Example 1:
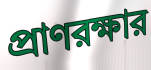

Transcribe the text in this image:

প্রাণরক্ষার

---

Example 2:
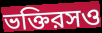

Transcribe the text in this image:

ভক্তিরসও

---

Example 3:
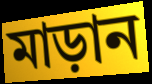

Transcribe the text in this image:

মাড়ান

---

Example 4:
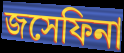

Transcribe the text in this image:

জসেফিনা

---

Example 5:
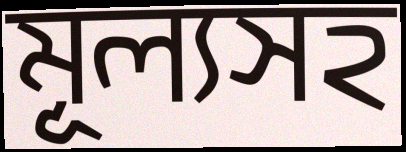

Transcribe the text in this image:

মূল্যসহ